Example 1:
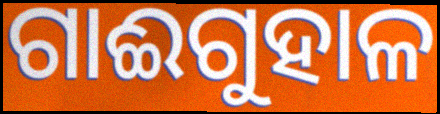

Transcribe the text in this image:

ଗାଈଗୁହାଳ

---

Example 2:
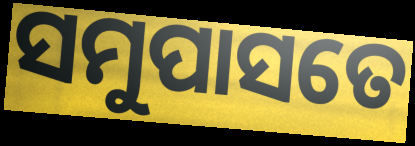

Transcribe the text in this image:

ସମୁପାସତେ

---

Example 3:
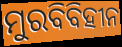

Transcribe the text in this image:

ମୁରବିବିହୀନ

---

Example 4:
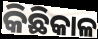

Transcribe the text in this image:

କିଛିକାଳ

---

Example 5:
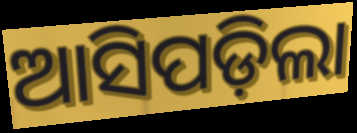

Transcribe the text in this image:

ଆସିପଡ଼ିଲା